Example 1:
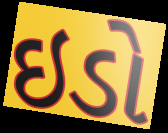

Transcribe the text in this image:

ઇડો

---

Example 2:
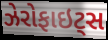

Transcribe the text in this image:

ઝેરોફાઇટ્સ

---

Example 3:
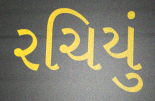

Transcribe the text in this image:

રચિયું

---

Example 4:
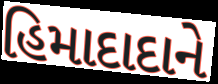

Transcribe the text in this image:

હિમાદાદાને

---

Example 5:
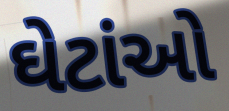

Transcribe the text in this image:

ઘેટાંઓ